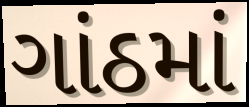
ગાંઠમાં